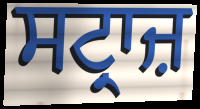
ਸਟ੍ਰਾਜ਼